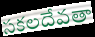
సకలదేవతా